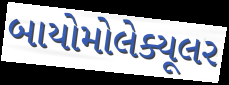
બાયોમોલેક્યૂલર